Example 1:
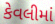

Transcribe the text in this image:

કેવલીમાં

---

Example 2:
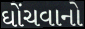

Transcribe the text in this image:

ઘોંચવાનો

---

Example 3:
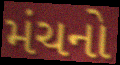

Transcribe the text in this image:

મંચનો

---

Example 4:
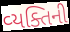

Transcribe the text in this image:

વ્‍યક્તિની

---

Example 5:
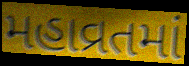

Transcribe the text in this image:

મહાવ્રતમાં